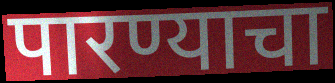
पारण्याचा